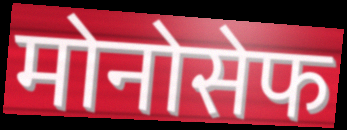
मोनोसेफ